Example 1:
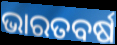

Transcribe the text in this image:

ଭାରତବର୍ଷ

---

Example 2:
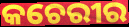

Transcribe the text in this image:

କଚେରୀର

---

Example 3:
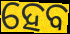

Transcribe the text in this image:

ହେବ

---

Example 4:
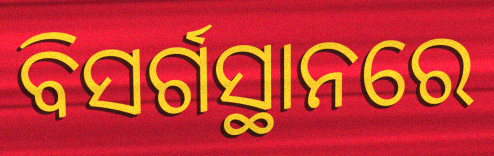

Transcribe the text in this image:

ବିସର୍ଗସ୍ଥାନରେ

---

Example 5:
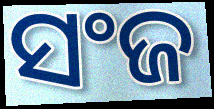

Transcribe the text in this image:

ସଂଜ